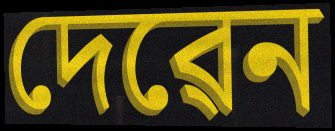
দেৱেন